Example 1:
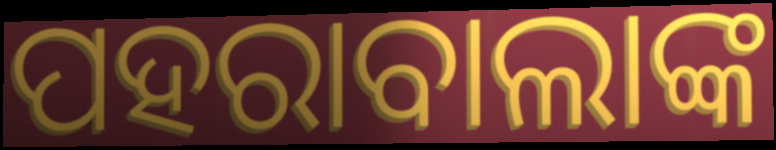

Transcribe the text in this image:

ପହରାବାଲାଙ୍କ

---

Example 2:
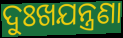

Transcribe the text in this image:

ଦୁଃଖଯନ୍ତ୍ରଣା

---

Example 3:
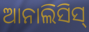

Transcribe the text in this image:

ଆନାଲିସିସ୍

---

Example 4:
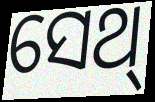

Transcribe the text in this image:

ସେଥ୍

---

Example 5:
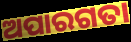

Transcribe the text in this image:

ଅପାରଗତା